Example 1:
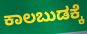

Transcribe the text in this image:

ಕಾಲಬುಡಕ್ಕೆ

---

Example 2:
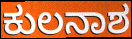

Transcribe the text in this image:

ಕುಲನಾಶ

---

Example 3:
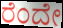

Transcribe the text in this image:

ರೆಂದೇ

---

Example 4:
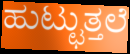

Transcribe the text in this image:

ಹುಟ್ಟುತ್ತಲೆ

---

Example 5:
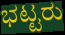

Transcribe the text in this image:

ಭಟ್ಟರು